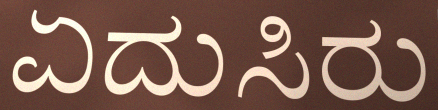
ಏದುಸಿರು